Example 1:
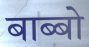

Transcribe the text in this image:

बाब्बो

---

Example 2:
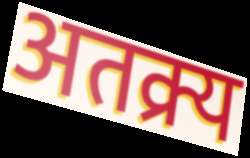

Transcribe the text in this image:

अतक्र्य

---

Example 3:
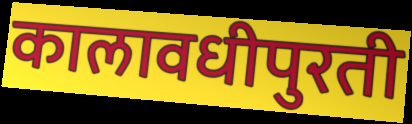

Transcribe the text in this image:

कालावधीपुरती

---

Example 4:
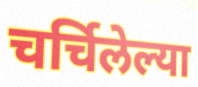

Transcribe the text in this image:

चर्चिलेल्या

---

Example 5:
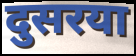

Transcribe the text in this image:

दुसरया